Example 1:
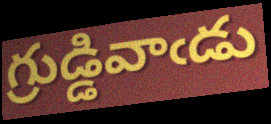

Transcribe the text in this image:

గ్రుడ్డివాఁడు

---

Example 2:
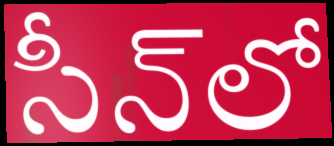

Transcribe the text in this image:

సీన్‌లో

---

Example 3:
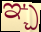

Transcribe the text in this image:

ఞ్చ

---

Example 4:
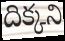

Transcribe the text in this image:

దిక్కని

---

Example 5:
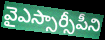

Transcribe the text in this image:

వైఎస్సార్సీపీని